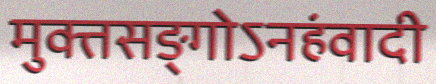
मुक्तसङ्गोऽनहंवादी